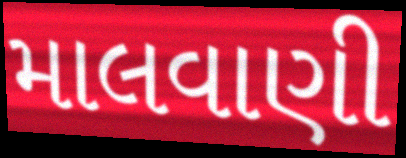
માલવાણી